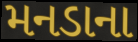
મનડાના